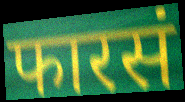
फारसं